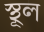
স্থূল